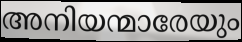
അനിയന്മാരേയും